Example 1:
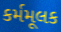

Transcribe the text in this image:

કર્મમૂલક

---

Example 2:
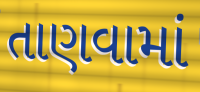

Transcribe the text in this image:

તાણવામાં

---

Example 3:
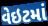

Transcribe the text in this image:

વેઇટમાં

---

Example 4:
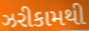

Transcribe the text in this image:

ઝરીકામથી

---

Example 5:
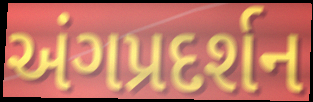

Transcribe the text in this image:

અંગપ્રદર્શન